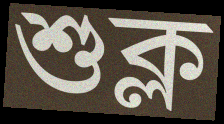
শুক্ল